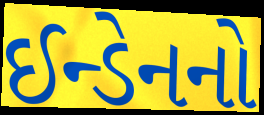
ઈન્ડેનનો